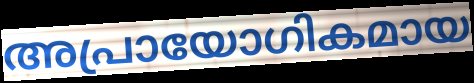
അപ്രായോഗികമായ